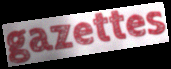
gazettes